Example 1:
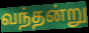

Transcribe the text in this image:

வந்தன்று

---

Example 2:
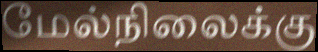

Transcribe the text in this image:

மேல்நிலைக்கு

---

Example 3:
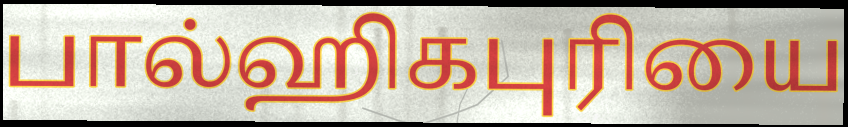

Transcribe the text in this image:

பால்ஹிகபுரியை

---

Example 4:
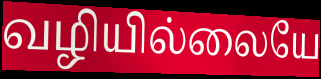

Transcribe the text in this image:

வழியில்லையே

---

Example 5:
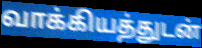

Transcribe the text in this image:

வாக்கியத்துடன்